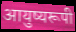
आयुष्यरूपी